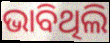
ଭାବିଥିଲି